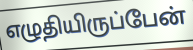
எழுதியிருப்பேன்